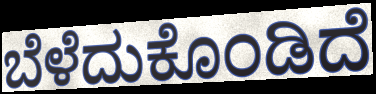
ಬೆಳೆದುಕೊಂಡಿದೆ